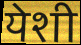
येशी